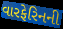
વારફેરિનની